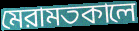
মেরামতকালে